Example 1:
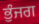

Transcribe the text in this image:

ਭੁੰਜਗ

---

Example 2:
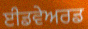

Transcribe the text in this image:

ਈਡਵੇਅਰਡ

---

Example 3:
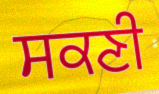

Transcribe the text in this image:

ਸਕਣੀ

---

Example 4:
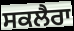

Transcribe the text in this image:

ਸਕਲੈਰਾ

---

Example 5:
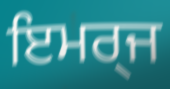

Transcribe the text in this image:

ਇਮਰ੍ਜ